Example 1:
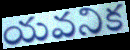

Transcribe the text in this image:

యవనిక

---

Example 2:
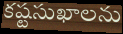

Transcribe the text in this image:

కష్టసుఖాలను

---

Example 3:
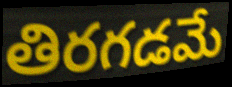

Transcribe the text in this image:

తిరగడమే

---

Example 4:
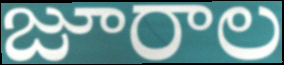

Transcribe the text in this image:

జూరాల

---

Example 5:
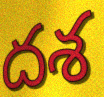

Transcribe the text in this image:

దశ